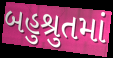
બહુશ્રુતમાં